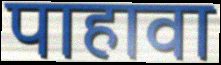
पाहावा